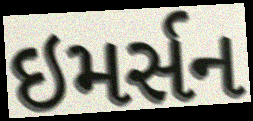
ઇમર્સન